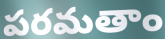
పరమతాం